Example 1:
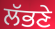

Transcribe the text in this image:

ਲੱਭਣੇ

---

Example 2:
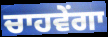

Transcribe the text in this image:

ਚਾਹਵੇਂਗਾ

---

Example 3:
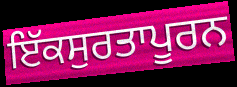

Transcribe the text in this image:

ਇੱਕਸੁਰਤਾਪੂਰਨ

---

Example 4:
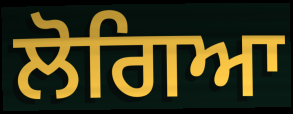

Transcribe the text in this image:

ਲੋਗਿਆ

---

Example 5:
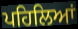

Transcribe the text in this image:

ਪਹਿਲਿਆਂ